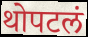
थोपटलं